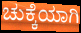
ಚುಕ್ಕೆಯಾಗಿ